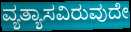
ವ್ಯತ್ಯಾಸವಿರುವುದೇ